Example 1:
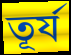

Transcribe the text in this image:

তূর্য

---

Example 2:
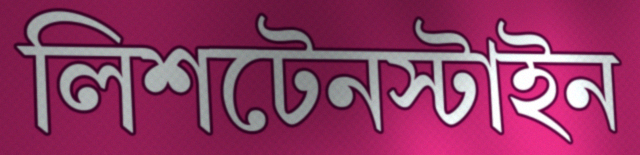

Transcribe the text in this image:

লিশটেনস্টাইন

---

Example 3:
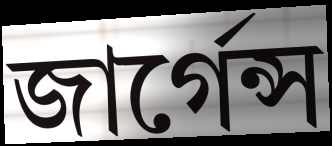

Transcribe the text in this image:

জার্গেন্স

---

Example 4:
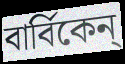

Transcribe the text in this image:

বার্বিকেন্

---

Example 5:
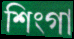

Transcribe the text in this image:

শিংগা